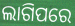
ଲାଗିପରେ